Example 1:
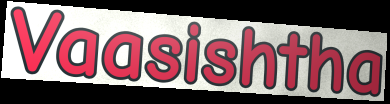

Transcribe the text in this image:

Vaasishtha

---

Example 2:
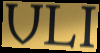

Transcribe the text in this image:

ULI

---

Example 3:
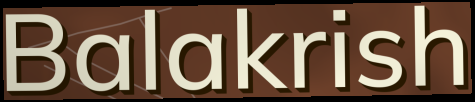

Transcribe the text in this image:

Balakrish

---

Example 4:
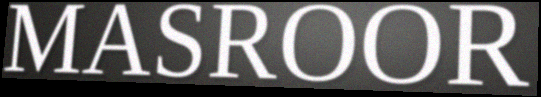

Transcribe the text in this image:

MASROOR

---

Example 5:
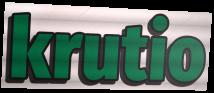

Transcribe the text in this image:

krutio